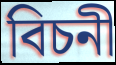
বিচনী